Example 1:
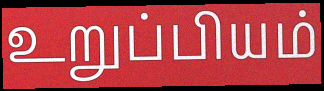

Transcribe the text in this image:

உறுப்பியம்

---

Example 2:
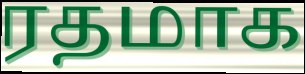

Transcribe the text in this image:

ரதமாக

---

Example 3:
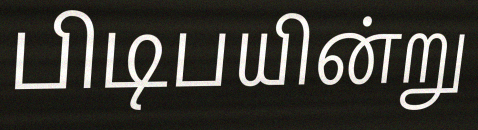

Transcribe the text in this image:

பிடிபயின்று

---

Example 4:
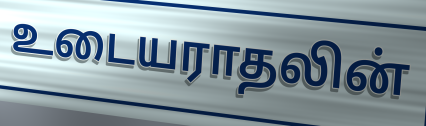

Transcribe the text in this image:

உடையராதலின்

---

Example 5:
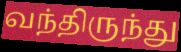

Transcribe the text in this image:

வந்திருந்து